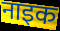
नाइक